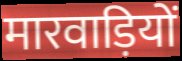
मारवाड़ियों